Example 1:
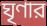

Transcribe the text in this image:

ঘৃণার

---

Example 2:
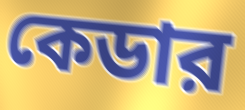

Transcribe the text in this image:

কেডার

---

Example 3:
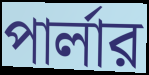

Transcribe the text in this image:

পার্লার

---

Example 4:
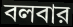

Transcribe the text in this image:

বলবার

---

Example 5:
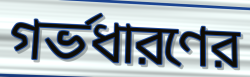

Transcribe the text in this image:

গর্ভধারণের